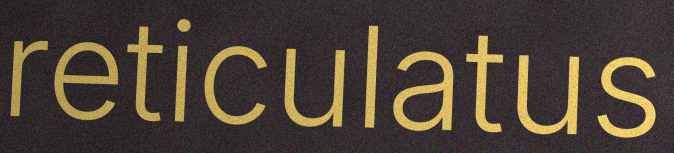
reticulatus